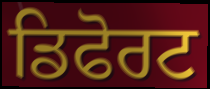
ਡਿਫੋਰਟ